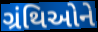
ગ્રંથિઓને